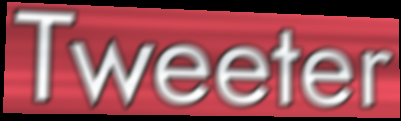
Tweeter